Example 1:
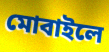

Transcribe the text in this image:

মোবাইলে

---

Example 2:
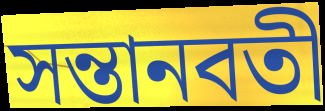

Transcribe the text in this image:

সন্তানবতী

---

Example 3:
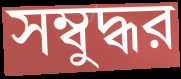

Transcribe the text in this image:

সম্বুদ্ধর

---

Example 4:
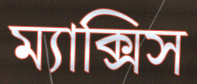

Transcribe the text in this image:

ম্যাক্সিস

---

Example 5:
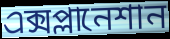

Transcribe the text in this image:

এক্সপ্লানেশান